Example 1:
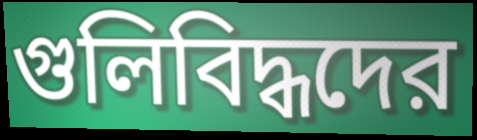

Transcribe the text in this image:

গুলিবিদ্ধদের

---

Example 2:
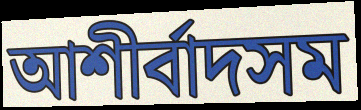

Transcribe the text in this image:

আশীর্বাদসম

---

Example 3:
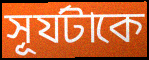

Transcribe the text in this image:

সূর্যটাকে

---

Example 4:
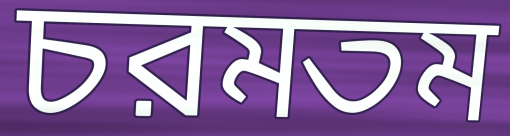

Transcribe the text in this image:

চরমতম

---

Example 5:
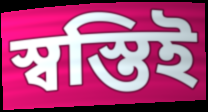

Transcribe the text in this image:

স্বস্তিই